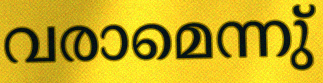
വരാമെന്നു്